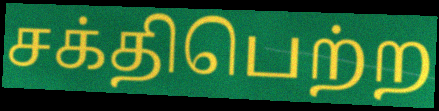
சக்திபெற்ற